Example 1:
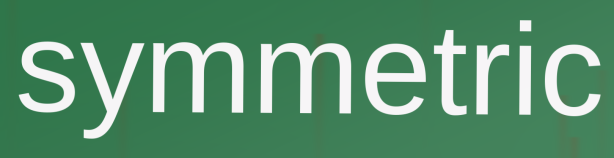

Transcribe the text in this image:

symmetric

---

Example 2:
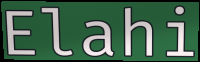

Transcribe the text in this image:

Elahi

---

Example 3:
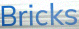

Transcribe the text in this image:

Bricks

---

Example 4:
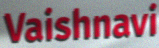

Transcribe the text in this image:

Vaishnavi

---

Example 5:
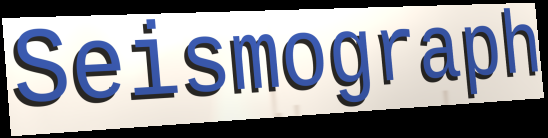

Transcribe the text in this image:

Seismograph